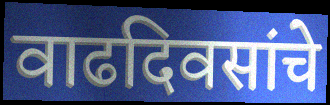
वाढदिवसांचे